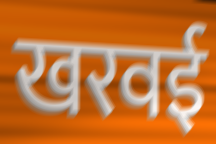
खरवई